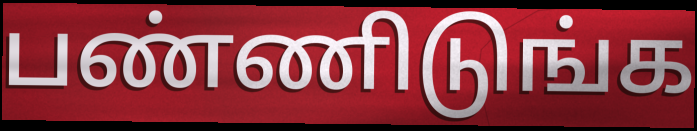
பண்ணிடுங்க